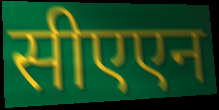
सीएएन